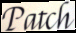
Patch